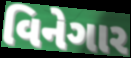
વિનેગાર